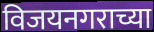
विजयनगराच्या